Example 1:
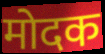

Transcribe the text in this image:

मोदक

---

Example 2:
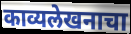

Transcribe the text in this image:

काव्यलेखनाचा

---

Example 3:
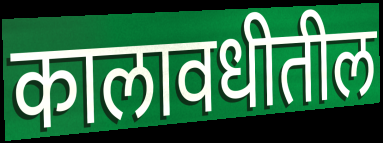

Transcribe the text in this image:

कालावधीतील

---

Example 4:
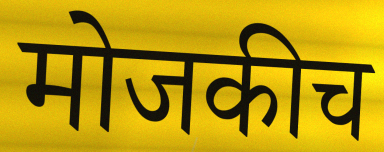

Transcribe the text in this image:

मोजकीच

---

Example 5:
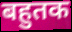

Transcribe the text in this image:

बहुतक